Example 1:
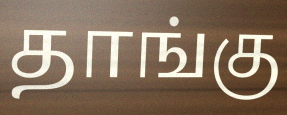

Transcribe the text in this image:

தாங்கு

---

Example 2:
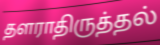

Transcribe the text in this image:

தளராதிருத்தல்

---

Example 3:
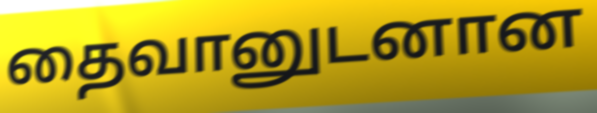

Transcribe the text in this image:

தைவானுடனான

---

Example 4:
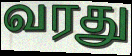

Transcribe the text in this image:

வரது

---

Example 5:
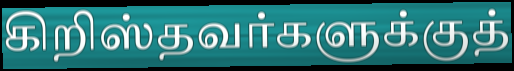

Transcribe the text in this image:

கிறிஸ்தவர்களுக்குத்